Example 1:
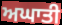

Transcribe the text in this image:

ਅਘਾਤੀ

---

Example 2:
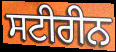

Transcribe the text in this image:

ਸਟੀਰੀਨ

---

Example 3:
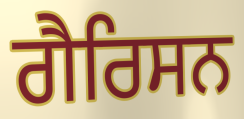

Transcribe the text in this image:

ਗੈਰਿਸਨ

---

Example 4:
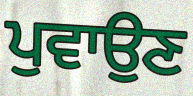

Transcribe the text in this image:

ਪੁਵਾਉਣ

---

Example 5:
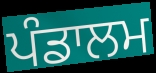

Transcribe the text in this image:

ਪੰਡਾਲਮ